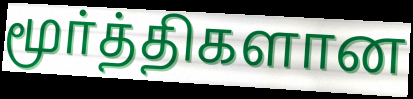
மூர்த்திகளான